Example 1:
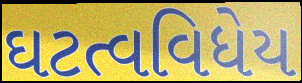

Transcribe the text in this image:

ઘટત્વવિધેય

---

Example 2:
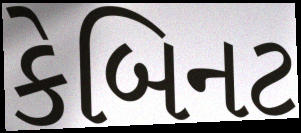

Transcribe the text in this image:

કેબિનટ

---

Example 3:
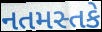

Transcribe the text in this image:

નતમસ્તકે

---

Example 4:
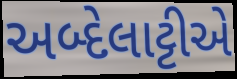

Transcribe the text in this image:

અબ્દેલાટ્ટીએ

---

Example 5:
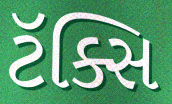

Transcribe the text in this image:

ટૅક્સિ